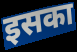
इसका